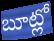
బూట్లో